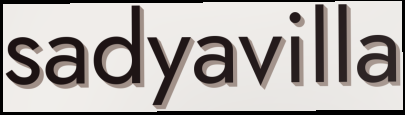
sadyavilla